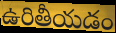
ఉరితీయడం